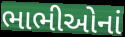
ભાભીઓનાં